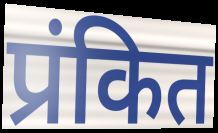
प्रंकित